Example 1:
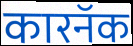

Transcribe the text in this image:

कारनॅक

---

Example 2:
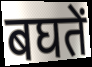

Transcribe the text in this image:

बघतें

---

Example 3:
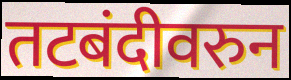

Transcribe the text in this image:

तटबंदीवरुन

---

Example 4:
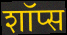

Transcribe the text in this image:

शॉप्स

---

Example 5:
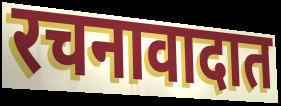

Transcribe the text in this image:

रचनावादात